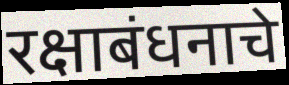
रक्षाबंधनाचे